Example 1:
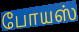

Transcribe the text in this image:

போயஸ்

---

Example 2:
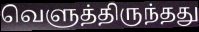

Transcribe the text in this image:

வெளுத்திருந்தது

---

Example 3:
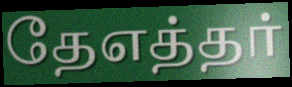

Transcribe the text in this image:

தேஎத்தர்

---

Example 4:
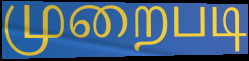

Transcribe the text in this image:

முறைபடி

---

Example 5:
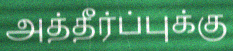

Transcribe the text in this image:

அத்தீர்ப்புக்கு